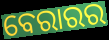
ବେରାରର